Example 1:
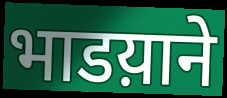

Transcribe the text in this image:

भाडय़ाने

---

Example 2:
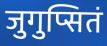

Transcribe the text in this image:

जुगुप्सितं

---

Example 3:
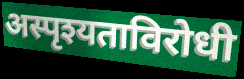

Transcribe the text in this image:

अस्पृश्यताविरोधी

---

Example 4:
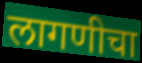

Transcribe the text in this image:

लागणीचा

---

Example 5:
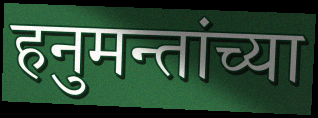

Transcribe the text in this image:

हनुमन्तांच्या